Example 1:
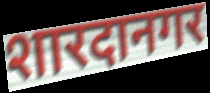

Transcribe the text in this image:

शारदानगर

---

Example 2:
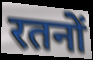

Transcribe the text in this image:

रतनों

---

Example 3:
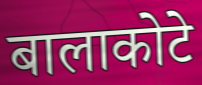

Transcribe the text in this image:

बालाकोटे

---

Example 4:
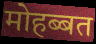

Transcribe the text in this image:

मोहब्‍बत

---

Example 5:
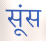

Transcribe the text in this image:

सूंस